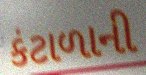
કંટાળાની